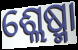
ଶ୍ଲେଷ୍ମା